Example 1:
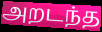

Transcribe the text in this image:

அறடந்த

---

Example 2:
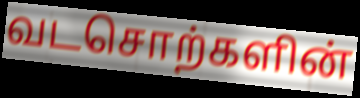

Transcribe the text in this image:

வடசொற்களின்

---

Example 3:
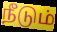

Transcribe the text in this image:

நீடும்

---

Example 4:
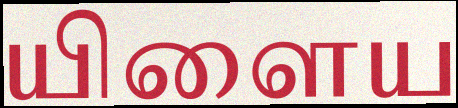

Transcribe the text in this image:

யிளைய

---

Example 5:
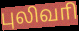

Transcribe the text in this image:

புலிவரி